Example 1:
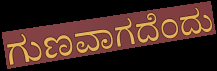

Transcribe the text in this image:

ಗುಣವಾಗದೆಂದು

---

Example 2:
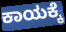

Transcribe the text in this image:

ಕಾಯಕ್ಕೆ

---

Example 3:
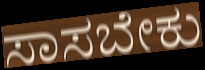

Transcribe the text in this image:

ಸಾಸಬೇಕು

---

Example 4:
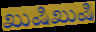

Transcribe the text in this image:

ಖುಷಿಖುಷಿ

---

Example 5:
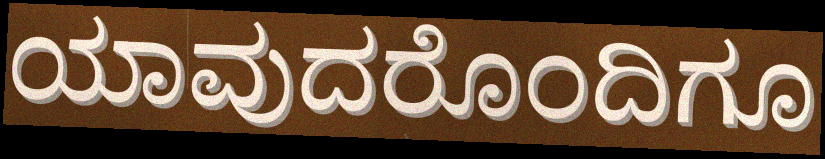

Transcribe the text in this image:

ಯಾವುದರೊಂದಿಗೂ